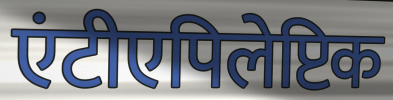
एंटीएपिलेप्टिक